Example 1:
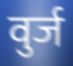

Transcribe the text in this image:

वुर्ज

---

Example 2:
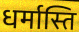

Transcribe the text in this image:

धर्मास्ति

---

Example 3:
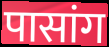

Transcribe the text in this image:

पासांग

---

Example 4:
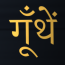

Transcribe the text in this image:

गूँथें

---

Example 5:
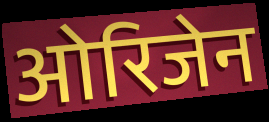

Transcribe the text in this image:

ओरिजेन